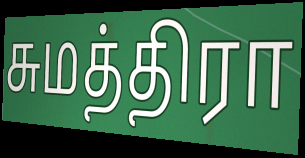
சுமத்திரா